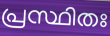
പ്രസ്ഥിതഃ